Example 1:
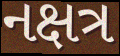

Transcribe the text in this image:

નક્ષત્ર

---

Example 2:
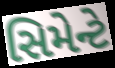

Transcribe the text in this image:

સિમેન્ટે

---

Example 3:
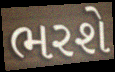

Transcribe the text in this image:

ભરશે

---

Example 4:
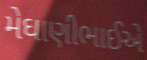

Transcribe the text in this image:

મેઘાણીભાઈએ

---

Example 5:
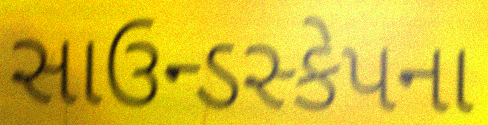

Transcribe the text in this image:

સાઉન્ડસ્કેપના